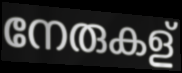
നേരുകള്